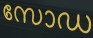
സോഡ